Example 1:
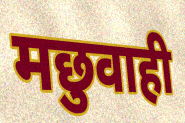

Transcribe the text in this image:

मछुवाही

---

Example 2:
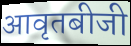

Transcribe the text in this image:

आवृतबीजी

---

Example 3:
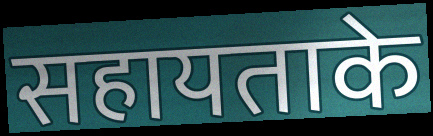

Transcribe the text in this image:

सहायताके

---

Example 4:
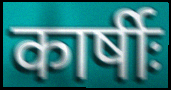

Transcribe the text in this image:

कार्षीः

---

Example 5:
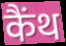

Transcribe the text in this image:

कैंथ